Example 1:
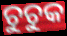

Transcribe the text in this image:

ଚୁଚୁକ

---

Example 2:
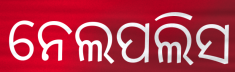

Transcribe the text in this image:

ନେଲପଲିସ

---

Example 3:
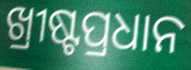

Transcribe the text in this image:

ଖ୍ରୀଷ୍ଟପ୍ରଧାନ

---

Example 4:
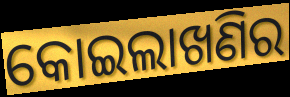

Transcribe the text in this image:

କୋଇଲାଖଣିର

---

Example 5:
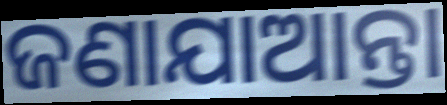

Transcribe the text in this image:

ଜଣାଯାଆନ୍ତା